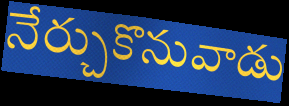
నేర్చుకొనువాడు